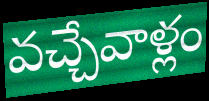
వచ్చేవాళ్లం